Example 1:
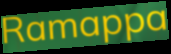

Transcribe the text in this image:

Ramappa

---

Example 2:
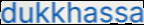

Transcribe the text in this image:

dukkhassa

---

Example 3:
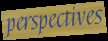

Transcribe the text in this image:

perspectives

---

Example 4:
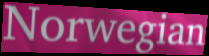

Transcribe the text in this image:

Norwegian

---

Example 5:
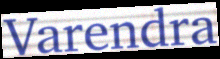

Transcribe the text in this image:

Varendra